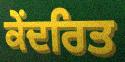
ਕੇਂਦਰਿਤ